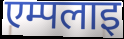
एम्पलाइ